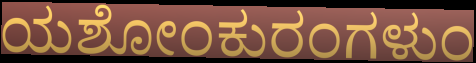
ಯಶೋಂಕುರಂಗಳುಂ